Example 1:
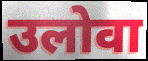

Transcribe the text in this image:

उलोवा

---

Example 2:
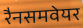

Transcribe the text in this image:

रैनसमवेयर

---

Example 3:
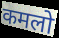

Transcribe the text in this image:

कमलो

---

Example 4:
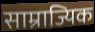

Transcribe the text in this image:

साम्राज्यिक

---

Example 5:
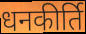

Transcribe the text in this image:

धनकीर्ति